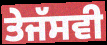
ਤੇਜੱਸਵੀ